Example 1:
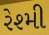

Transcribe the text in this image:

રેશ્મી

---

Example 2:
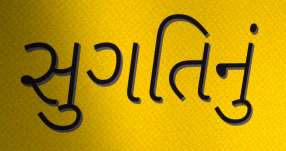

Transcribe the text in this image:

સુગતિનું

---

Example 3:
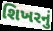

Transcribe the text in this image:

શિખરનું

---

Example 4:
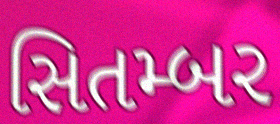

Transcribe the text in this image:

સિતમ્બર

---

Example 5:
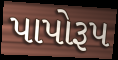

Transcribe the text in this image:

પાપોરૂપ